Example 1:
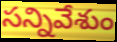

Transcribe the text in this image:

సన్నివేశుం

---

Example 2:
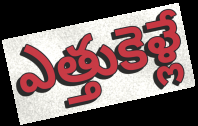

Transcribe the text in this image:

ఎత్తుకెళ్లే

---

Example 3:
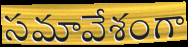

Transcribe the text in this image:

సమావేశంగా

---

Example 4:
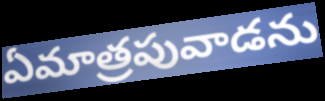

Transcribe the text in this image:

ఏమాత్రపువాడను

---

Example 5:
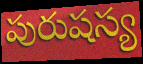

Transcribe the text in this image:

పురుషస్య